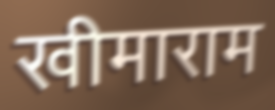
खीमाराम